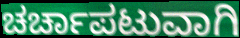
ಚರ್ಚಾಪಟುವಾಗಿ